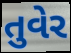
તુવેર